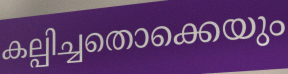
കല്പിച്ചതൊക്കെയും